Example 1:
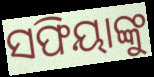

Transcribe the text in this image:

ସଫିୟାଙ୍କୁ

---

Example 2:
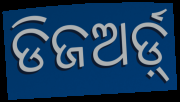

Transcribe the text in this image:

ଡିଜଅର୍ଡ଼୍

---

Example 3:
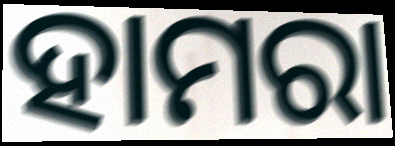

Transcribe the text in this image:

ହାମରା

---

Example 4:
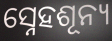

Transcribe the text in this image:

ସ୍ନେହଶୂନ୍ୟ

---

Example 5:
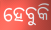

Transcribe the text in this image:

ହେବୁକି